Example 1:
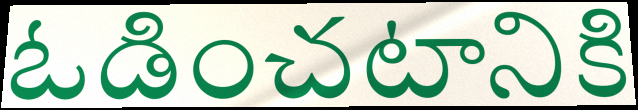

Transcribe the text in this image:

ఓడించటానికి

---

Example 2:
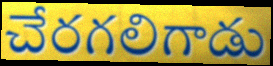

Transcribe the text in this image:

చేరగలిగాడు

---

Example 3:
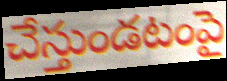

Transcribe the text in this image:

చేస్తుండటంపై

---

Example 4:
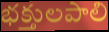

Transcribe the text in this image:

భక్తులపాలి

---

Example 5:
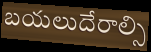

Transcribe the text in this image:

బయలుదేరాల్సి